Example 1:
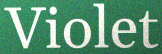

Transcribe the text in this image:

Violet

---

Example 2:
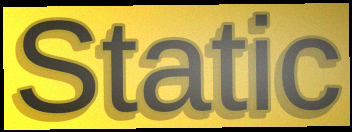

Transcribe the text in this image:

Static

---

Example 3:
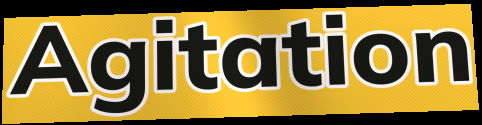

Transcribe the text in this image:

Agitation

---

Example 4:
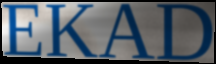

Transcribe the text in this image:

EKAD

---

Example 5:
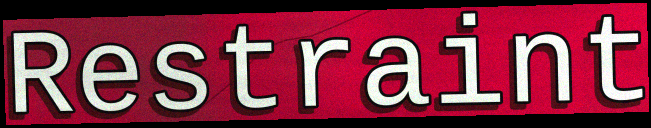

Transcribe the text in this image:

Restraint